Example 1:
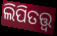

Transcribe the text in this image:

ଲିପିତତ୍ତ୍ୱ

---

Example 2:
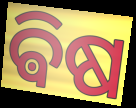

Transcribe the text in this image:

ଵିଷ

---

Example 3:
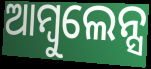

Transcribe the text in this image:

ଆମ୍ବୁଲେନ୍ସ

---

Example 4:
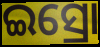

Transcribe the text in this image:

ଇସ୍ରୋ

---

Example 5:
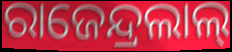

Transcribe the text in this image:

ରାଜେନ୍ଦ୍ରଲାଲ୍